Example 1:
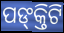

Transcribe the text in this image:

ପଙ୍‌କ୍ତିଟି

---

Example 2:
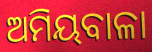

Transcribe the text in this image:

ଅମିୟବାଳା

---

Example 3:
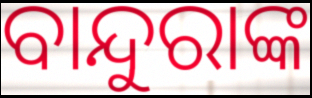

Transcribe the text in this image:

ବାନ୍ଦୁରାଙ୍କ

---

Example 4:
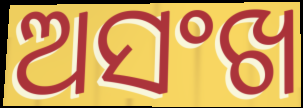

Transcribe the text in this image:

ଅସଂଖ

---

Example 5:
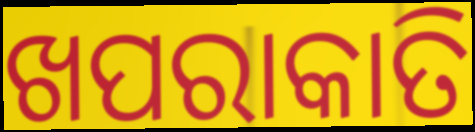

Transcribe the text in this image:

ଖପରାକାତି